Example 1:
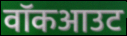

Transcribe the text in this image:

वॉकआउट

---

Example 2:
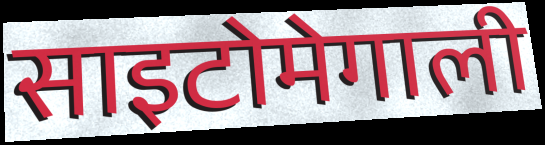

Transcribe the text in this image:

साइटोमेगाली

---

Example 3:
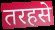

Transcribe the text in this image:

तरहसे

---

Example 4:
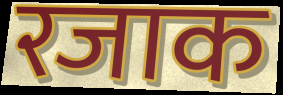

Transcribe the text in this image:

रजाक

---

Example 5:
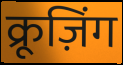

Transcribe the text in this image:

क्रूज़िंग